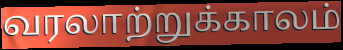
வரலாற்றுக்காலம்